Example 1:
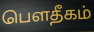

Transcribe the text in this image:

பௌதீகம்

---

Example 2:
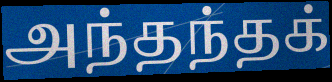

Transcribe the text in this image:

அந்தந்தக்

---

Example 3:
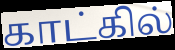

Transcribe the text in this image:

காட்கில்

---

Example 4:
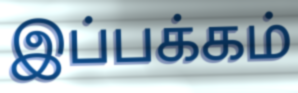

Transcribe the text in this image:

இப்பக்கம்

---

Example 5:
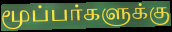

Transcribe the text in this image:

மூப்பர்களுக்கு